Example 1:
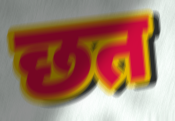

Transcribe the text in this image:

छत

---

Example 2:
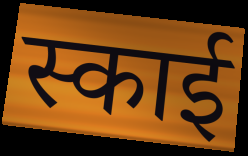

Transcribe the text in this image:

स्काई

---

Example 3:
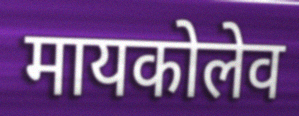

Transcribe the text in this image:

मायकोलेव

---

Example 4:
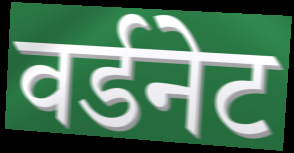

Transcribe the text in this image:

वर्डनेट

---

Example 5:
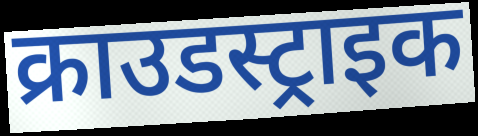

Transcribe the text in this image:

क्राउडस्ट्राइक